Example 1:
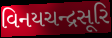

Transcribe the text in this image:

વિનયચન્દ્રસૂરિ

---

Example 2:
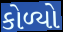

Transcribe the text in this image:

કોળ્યો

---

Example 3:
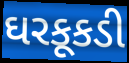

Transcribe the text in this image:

ઘરકૂકડી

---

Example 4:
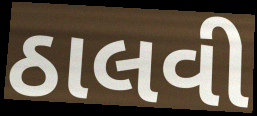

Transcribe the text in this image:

ઠાલવી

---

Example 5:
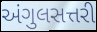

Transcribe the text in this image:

અંગુલસત્તરી